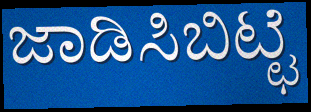
ಜಾಡಿಸಿಬಿಟ್ಟೆ